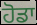
ਹੋਡਾ